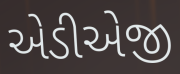
એડીએજી